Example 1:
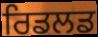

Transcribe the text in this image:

ਰਿਡਲਡ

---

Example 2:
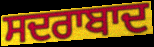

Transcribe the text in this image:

ਸਦਰਾਬਾਦ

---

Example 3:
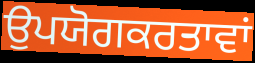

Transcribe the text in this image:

ਉਪਯੋਗਕਰਤਾਵਾਂ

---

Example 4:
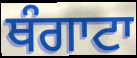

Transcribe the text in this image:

ਥੰਗਾਟਾ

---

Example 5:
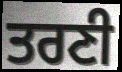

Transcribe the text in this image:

ਤਰਣੀ